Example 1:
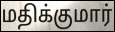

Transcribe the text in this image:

மதிக்குமார்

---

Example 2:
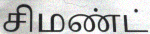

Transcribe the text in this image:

சிமண்ட்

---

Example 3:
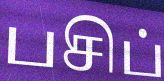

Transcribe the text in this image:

பசிப்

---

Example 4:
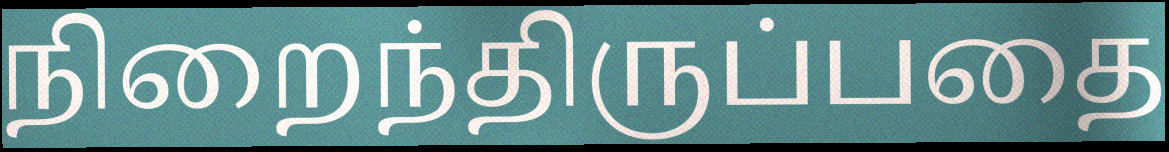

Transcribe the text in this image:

நிறைந்திருப்பதை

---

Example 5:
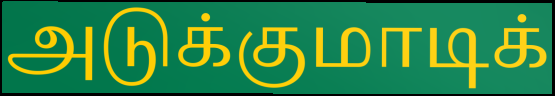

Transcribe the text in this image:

அடுக்குமாடிக்